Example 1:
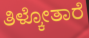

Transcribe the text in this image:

ತಿಳ್ಕೋತಾರೆ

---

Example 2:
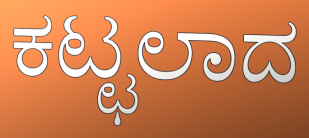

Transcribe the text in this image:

ಕಟ್ಟಲಾದ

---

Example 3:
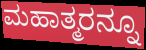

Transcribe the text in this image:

ಮಹಾತ್ಮರನ್ನೂ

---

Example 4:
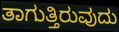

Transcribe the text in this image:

ತಾಗುತ್ತಿರುವುದು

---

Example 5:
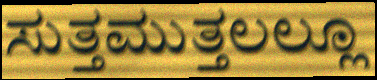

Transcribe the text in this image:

ಸುತ್ತಮುತ್ತಲಲ್ಲೂ